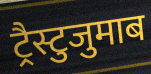
ट्रैस्टुजुमाब